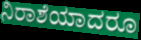
ನಿರಾಶೆಯಾದರೂ